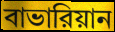
বাভারিয়ান